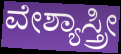
ವೇಶ್ಯಾಸ್ತ್ರೀ